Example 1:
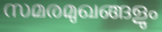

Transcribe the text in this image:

സമരമുഖങ്ങളും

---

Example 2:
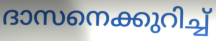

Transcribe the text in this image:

ദാസനെക്കുറിച്ച്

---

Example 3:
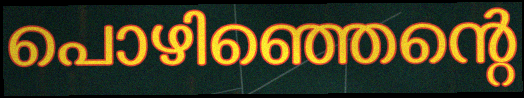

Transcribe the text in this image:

പൊഴിഞ്ഞെന്റെ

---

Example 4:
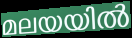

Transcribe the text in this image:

മലയയിൽ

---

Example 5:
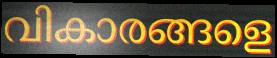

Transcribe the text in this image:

വികാരങ്ങളെ